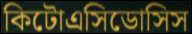
কিটোএসিডোসিস